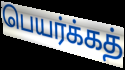
பெயர்க்கத்